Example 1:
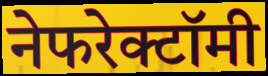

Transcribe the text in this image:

नेफरेक्टॉमी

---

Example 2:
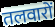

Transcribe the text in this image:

तलवारों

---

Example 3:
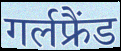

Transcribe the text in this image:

गर्लफ्रैंड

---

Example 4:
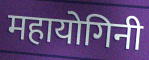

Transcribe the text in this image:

महायोगिनी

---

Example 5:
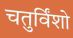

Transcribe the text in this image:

चतुर्विंशो